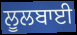
ਲੂਲਬਾਈ